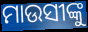
ମାଉସୀଙ୍କୁ